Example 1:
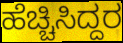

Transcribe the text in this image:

ಹೆಚ್ಚಿಸಿದ್ದರ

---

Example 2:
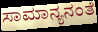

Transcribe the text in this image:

ಸಾಮಾನ್ಯನಂತೆ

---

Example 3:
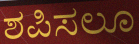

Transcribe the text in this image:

ಶಪಿಸಲೂ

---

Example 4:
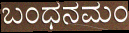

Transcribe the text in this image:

ಬಂಧನಮಂ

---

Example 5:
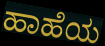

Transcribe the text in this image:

ಹಾಹೆಯ